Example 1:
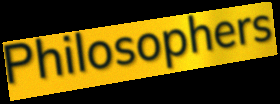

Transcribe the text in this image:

Philosophers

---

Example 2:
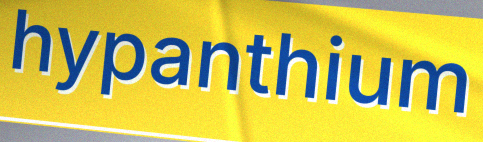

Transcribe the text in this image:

hypanthium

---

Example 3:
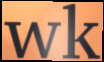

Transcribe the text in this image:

wk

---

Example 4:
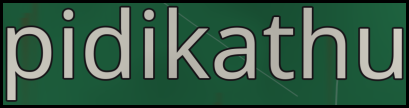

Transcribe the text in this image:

pidikathu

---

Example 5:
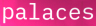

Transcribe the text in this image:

palaces